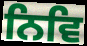
ਨਿਵਿ